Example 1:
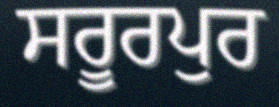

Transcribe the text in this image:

ਸਰੂਰਪੁਰ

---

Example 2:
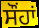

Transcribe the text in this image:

ਸੌਂਹਾਂ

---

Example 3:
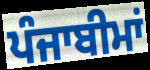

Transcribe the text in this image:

ਪੰਜਾਬੀਮਾਂ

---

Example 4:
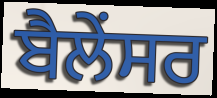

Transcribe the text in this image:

ਬੈਲੇਂਸਰ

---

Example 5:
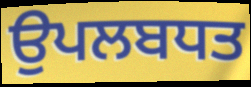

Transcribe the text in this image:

ਉਪਲਬਧਤ